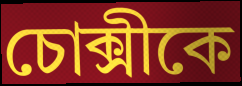
চোক্সীকে